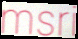
msri